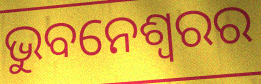
ଭୁବନେଶ୍ଵରର